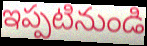
ఇప్పటినుండి